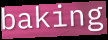
baking